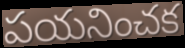
పయనించక